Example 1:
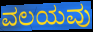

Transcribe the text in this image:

ವಲಯವು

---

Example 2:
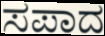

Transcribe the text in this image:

ಸಪಾದ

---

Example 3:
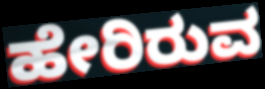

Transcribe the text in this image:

ಹೇರಿರುವ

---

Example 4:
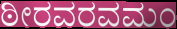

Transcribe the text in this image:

ಠೀರವರವಮಂ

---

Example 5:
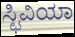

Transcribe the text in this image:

ಸ್ಟಿವಿಯಾ